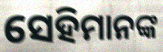
ସେହିମାନଙ୍କ